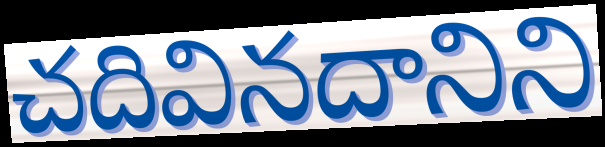
చదివినదానిని